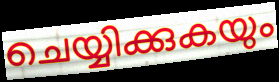
ചെയ്യിക്കുകയും